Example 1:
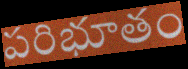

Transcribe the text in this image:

పరిభూతం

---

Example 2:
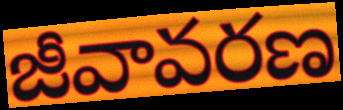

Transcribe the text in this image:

జీవావరణ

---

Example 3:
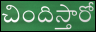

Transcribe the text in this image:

చిందిస్తారో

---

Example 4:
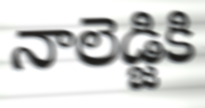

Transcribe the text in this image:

నాలెడ్జికి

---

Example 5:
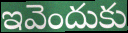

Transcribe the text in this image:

ఇవెందుకు